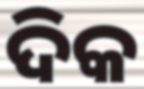
ଦିକ